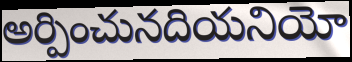
అర్పించునదియనియో